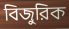
বিজুরিক